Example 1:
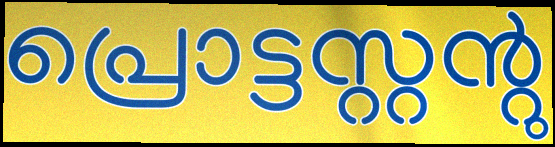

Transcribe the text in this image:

പ്രൊട്ടസ്റ്റന്റു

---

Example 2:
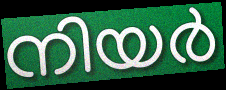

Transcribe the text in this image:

നിയർ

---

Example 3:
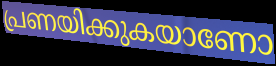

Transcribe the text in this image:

പ്രണയിക്കുകയാണോ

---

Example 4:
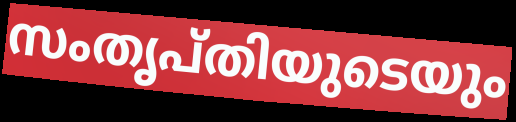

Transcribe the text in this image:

സംതൃപ്തിയുടെയും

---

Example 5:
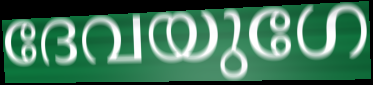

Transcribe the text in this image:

ദേവയുഗേ